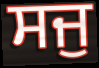
ਸਜੁ